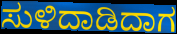
ಸುಳಿದಾಡಿದಾಗ